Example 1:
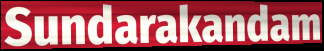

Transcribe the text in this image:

Sundarakandam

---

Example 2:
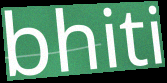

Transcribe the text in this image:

bhiti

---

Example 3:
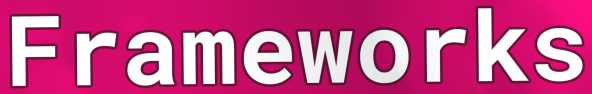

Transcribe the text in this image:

Frameworks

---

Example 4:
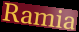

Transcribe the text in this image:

Ramia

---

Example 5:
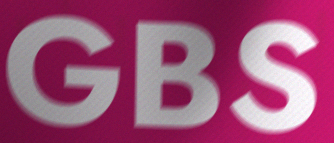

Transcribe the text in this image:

GBS